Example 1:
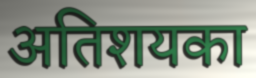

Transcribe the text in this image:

अतिशयका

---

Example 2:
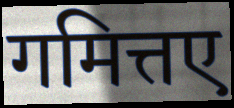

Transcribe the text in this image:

गमित्तए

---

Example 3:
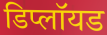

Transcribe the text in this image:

डिप्लॉयड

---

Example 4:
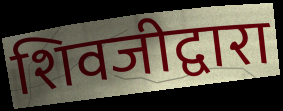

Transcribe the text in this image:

शिवजीद्वारा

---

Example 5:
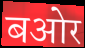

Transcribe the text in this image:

बओर